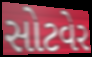
સોટવેર